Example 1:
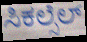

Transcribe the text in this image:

ಸಿಕಲ್ಸೆಲ್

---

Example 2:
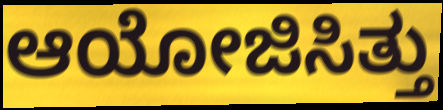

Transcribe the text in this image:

ಆಯೋಜಿಸಿತ್ತು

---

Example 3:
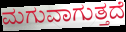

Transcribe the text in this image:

ಮಗುವಾಗುತ್ತದೆ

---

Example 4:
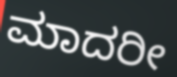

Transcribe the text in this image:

ಮಾದರೀ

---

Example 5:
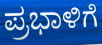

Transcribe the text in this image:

ಪ್ರಭಾಳಿಗೆ